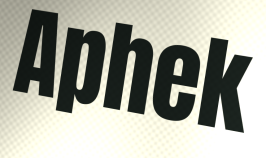
Aphek